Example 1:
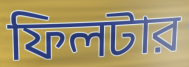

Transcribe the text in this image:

ফিলটার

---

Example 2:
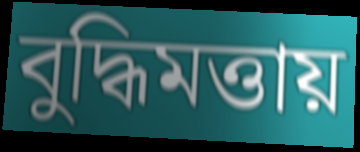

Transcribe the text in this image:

বুদ্ধিমত্তায়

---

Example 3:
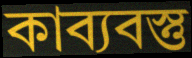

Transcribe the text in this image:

কাব্যবস্তু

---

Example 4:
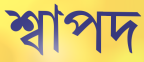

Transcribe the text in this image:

শ্বাপদ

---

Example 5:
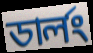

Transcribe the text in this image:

ডার্লং